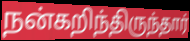
நன்கறிந்திருந்தார்